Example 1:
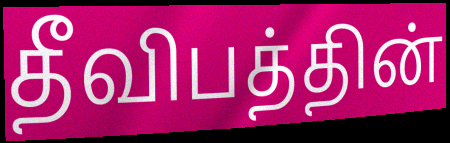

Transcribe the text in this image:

தீவிபத்தின்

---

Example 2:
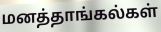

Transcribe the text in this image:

மனத்தாங்கல்கள்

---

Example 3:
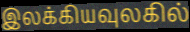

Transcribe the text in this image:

இலக்கியவுலகில்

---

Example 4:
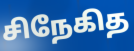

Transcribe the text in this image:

சிநேகித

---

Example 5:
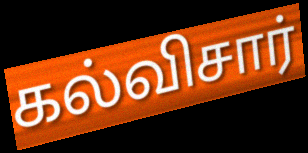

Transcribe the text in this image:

கல்விசார்